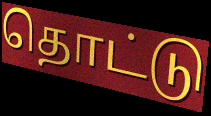
தொட்டு